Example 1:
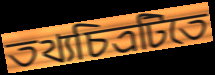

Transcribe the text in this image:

তথ্যচিত্রটিতে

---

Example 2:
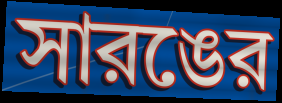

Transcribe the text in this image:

সারঙের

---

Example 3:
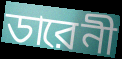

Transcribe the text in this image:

ডারেনী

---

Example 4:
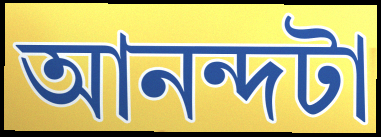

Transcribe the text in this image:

আনন্দটা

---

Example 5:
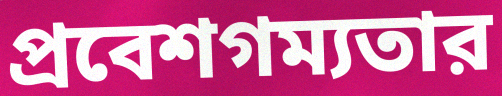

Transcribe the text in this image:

প্রবেশগম্যতার